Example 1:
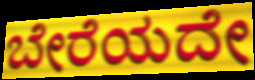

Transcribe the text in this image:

ಬೇರೆಯದೇ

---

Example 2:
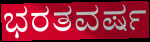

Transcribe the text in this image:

ಭರತವರ್ಷ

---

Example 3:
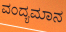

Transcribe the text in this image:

ವಂದ್ಯಮಾನ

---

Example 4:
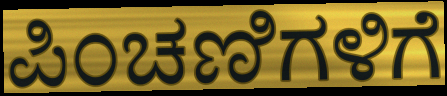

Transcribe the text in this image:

ಪಿಂಚಣಿಗಳಿಗೆ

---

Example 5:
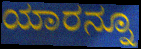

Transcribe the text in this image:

ಯಾರನ್ನೂ